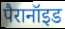
पैरानॉइड